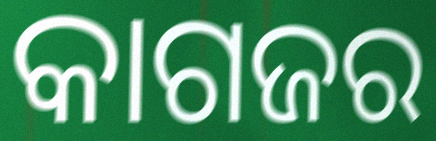
କାଗଜର